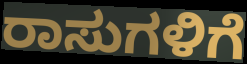
ರಾಸುಗಳಿಗೆ